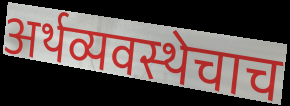
अर्थव्यवस्थेचाच